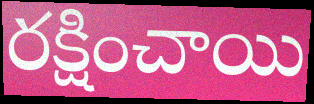
రక్షించాయి